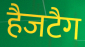
हैजटैग